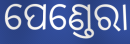
ପେଣ୍ଡେରା